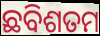
ଛବିଶତମ